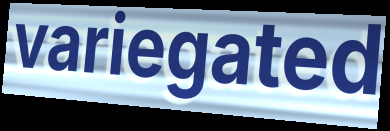
variegated